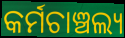
କର୍ମଚାଞ୍ଚଲ୍ୟ